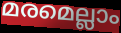
മരമെല്ലാം